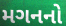
મગનનો